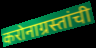
करोनाग्रस्तांची